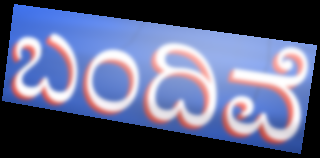
ಬಂದಿವೆ